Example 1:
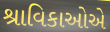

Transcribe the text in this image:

શ્રાવિકાઓએ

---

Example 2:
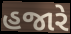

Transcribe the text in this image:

હજારે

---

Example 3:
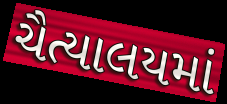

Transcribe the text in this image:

ચૈત્યાલયમાં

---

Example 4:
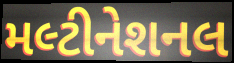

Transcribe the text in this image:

મલ્ટીનેશનલ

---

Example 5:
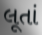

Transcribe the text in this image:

લૂતાં